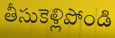
తీసుకెళ్లిపోండి